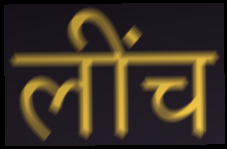
लींच